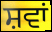
ਸ਼ਵਾਂ